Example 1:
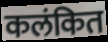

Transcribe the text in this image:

कलंकित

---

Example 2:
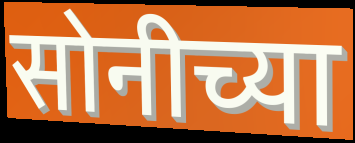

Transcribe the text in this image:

सोनीच्या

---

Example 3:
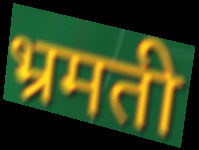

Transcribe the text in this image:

भ्रमती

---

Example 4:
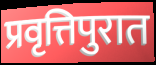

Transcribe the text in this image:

प्रवृत्तिपुरात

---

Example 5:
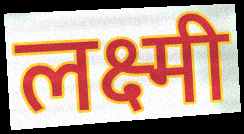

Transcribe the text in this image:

लक्ष्मी